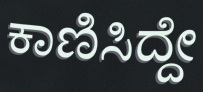
ಕಾಣಿಸಿದ್ದೇ